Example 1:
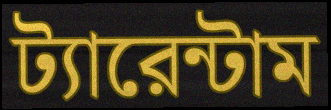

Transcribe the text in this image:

ট্যারেন্টাম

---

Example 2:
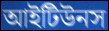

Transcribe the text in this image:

আইটিউনস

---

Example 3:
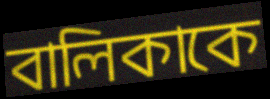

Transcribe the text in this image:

বালিকাকে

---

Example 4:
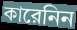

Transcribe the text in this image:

কারেনিন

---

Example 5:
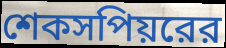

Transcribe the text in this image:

শেকসপিয়রের